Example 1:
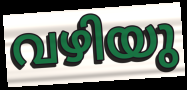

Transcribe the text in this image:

വഴിയു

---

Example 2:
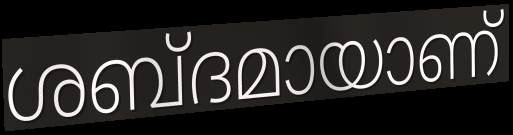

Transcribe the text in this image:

ശബ്ദമായാണ്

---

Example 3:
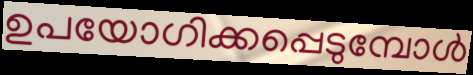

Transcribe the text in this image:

ഉപയോഗിക്കപ്പെടുമ്പോൾ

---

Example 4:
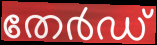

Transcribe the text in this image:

തേർഡ്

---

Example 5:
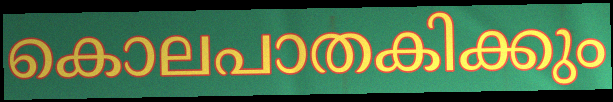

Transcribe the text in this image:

കൊലപാതകിക്കും